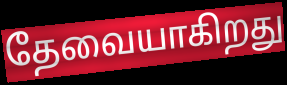
தேவையாகிறது